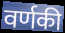
वर्णकी